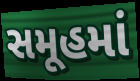
સમૂહમાં